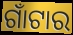
ଗାଁଟାର